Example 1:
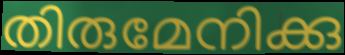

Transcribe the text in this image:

തിരുമേനിക്കു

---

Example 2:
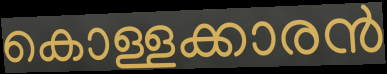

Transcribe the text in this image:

കൊള്ളക്കാരൻ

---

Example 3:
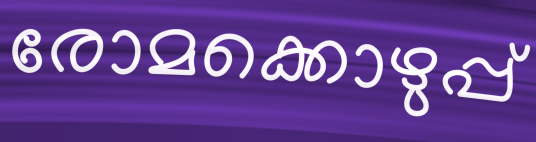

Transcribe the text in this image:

രോമക്കൊഴുപ്പ്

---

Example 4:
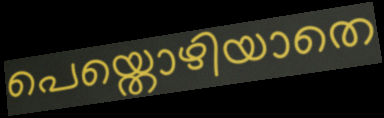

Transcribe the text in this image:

പെയ്തൊഴിയാതെ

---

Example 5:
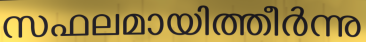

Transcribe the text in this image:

സഫലമായിത്തീർന്നു